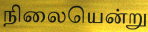
நிலையென்று